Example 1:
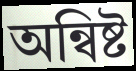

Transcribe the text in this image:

অন্বিষ্ট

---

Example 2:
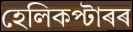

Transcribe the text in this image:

হেলিকপ্টাৰৰ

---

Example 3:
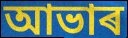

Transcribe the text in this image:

আভাৰ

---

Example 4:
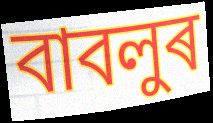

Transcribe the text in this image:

বাবলুৰ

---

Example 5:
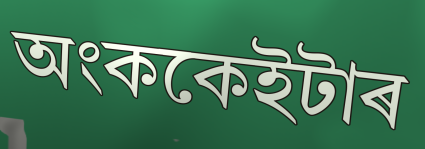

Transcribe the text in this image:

অংককেইটাৰ